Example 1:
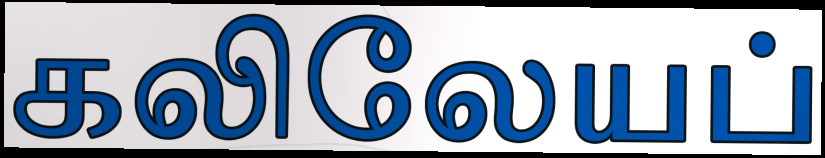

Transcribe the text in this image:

கலிலேயப்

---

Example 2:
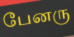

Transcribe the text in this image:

பேனரு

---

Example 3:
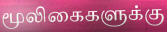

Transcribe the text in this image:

மூலிகைகளுக்கு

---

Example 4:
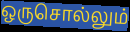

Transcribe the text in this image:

ஒருசொல்லும்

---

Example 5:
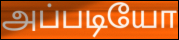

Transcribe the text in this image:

அப்படியோ